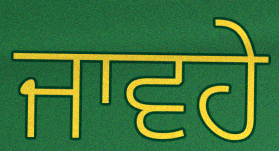
ਜਾਵਹੇ